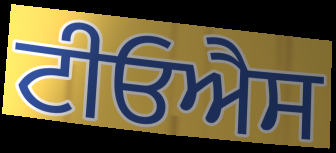
ਟੀਓਐਸ